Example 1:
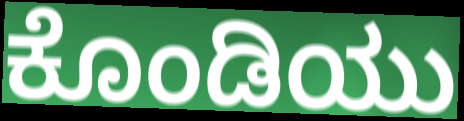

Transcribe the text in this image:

ಕೊಂಡಿಯು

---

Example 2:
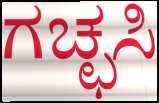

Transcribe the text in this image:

ಗಚ್ಛಸಿ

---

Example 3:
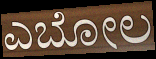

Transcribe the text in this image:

ಎಬೋಲ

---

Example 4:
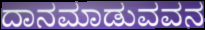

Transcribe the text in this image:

ದಾನಮಾಡುವವನ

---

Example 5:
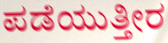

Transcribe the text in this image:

ಪಡೆಯುತ್ತೀರ